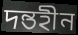
দন্তহীন